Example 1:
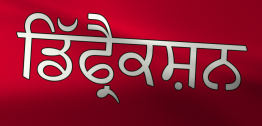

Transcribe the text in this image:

ਡਿੱਫ੍ਰੈਕਸ਼ਨ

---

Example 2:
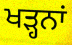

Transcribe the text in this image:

ਖੜ੍ਹਨਾਂ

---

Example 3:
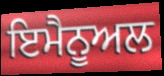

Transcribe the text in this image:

ਇਮੈਨੂਅਲ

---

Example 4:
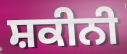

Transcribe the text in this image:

ਸ਼ਕੀਨੀ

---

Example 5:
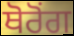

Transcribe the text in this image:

ਥੋਰੋਂਗ